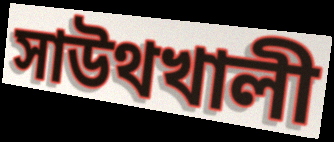
সাউথখালী